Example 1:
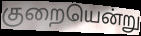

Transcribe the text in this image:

குறையென்று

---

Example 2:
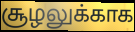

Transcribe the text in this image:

சூழலுக்காக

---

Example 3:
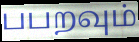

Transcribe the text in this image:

பபறவும்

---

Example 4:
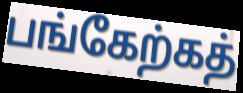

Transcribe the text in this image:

பங்கேற்கத்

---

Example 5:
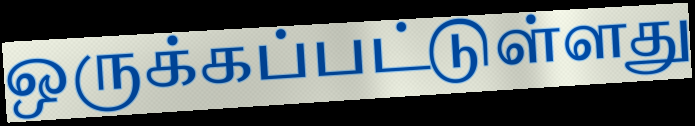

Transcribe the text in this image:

ஒருக்கப்பட்டுள்ளது